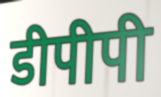
डीपीपी